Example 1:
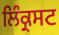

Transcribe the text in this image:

ਲਿੰਕ੍ਰਸਟ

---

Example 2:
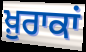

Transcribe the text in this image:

ਖ਼ੁਰਾਕਾਂ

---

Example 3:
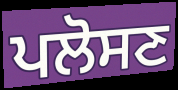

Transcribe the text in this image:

ਪਲੋਸਣ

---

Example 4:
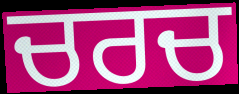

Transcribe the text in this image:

ਚਰਚ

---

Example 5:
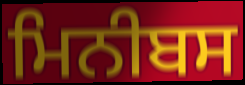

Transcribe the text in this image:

ਮਿਨੀਬਸ